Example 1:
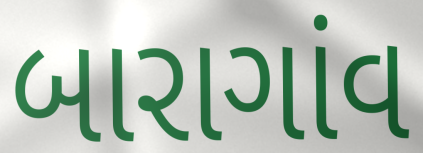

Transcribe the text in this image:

બારાગાંવ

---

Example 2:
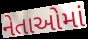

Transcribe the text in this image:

નેતાઓમાં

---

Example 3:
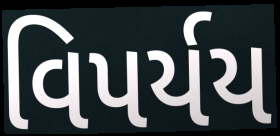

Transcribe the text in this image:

વિપર્યય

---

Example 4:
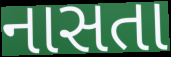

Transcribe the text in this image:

નાસતા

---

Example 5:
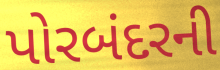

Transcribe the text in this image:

પોરબંદરની